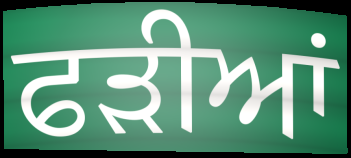
ਫੜੀਆਂ